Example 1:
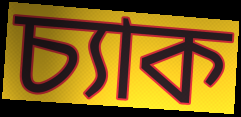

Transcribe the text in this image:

চ্যাক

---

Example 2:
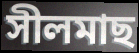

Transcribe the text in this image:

সীলমাছ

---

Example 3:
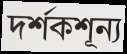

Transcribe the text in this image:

দর্শকশূন্য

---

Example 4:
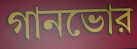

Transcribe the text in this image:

গানভোর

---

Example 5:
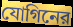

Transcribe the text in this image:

যোগিনের